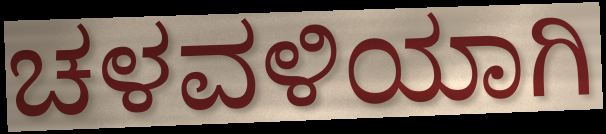
ಚಳವಳಿಯಾಗಿ